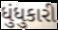
ધુંધુકારી